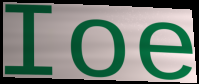
Ioe